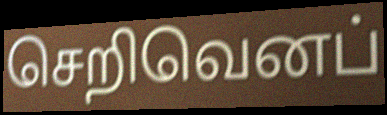
செறிவெனப்